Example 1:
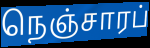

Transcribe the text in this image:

நெஞ்சாரப்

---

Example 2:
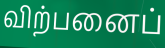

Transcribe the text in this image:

விற்பனைப்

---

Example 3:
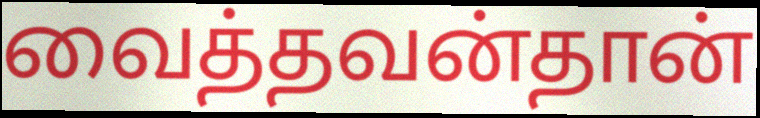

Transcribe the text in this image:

வைத்தவன்தான்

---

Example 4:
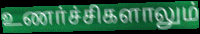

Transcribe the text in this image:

உணர்ச்சிகளாலும்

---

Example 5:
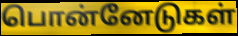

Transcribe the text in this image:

பொன்னேடுகள்